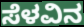
ಸೆಳವಿನ